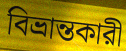
বিভ্রান্তকারী